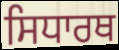
ਸਿਧਾਰਥ